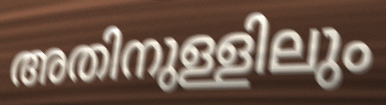
അതിനുള്ളിലും